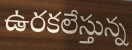
ఉరకలేస్తున్న